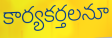
కార్యకర్తలనూ